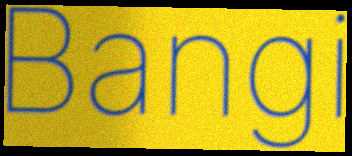
Bangi